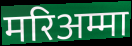
मरिअम्मा